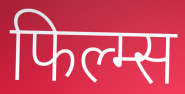
फिल्म्स